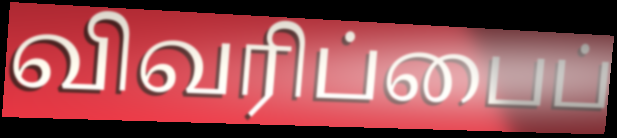
விவரிப்பைப்